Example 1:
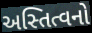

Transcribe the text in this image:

અસ્તિત્વનો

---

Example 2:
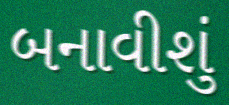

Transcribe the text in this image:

બનાવીશું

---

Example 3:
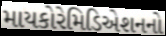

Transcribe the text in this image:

માયકોરેમિડિએશનનો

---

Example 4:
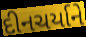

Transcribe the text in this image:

દીનચર્યાને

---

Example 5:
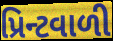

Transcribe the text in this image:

પ્રિન્ટવાળી